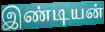
இண்டியன்